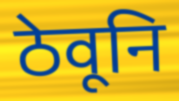
ठेवूनि